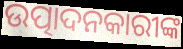
ଉତ୍ପାଦନକାରୀଙ୍କ